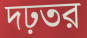
দঢ়তর